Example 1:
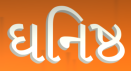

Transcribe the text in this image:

ઘનિષ્ઠ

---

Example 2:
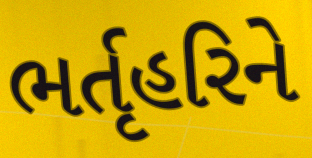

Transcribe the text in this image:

ભર્તૃહરિને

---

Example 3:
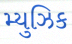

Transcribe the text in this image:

મ્યુઝિક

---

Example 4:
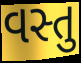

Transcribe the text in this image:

વસ્તુ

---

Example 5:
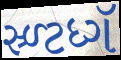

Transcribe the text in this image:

સ્ર્ળ્ટધ્ગૅ